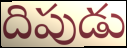
దిపుడు